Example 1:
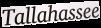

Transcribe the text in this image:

Tallahassee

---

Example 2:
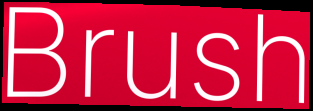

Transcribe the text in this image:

Brush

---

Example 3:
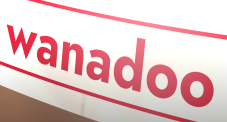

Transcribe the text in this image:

wanadoo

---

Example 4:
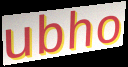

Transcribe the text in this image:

ubho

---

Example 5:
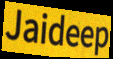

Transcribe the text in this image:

Jaideep